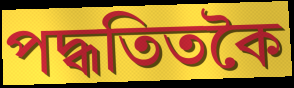
পদ্ধতিতকৈ